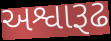
અશ્વારૂઢ